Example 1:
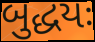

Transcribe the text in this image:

બુદ્ધયઃ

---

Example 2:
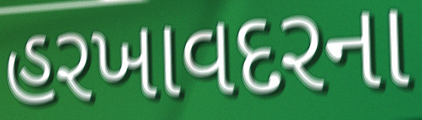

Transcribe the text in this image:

હરખાવદરના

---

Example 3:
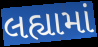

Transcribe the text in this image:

લહ્યામાં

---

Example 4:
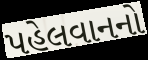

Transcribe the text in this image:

પહેલવાનનો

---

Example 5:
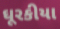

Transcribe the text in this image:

ઘૂરકીયા